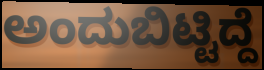
ಅಂದುಬಿಟ್ಟಿದ್ದೆ